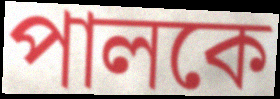
পালকে